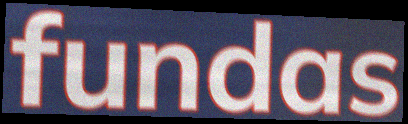
fundas